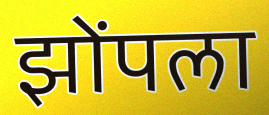
झोंपला